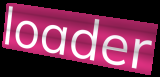
loader